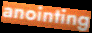
anointing